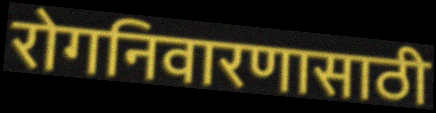
रोगनिवारणासाठी